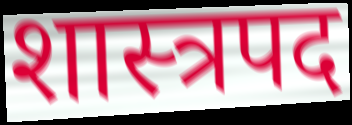
शास्त्रपद